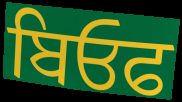
ਬਿਓਫ